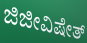
ಜಿಜೀವಿಷೇತ್